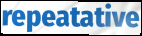
repeatative